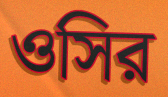
ওসির